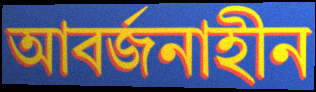
আবর্জনাহীন